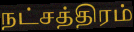
நட்சத்திரம்